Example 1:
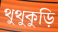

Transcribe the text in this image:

থুথুকুড়ি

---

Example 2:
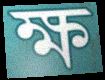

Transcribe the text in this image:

ক্ষ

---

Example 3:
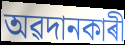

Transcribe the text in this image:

অৱদানকাৰী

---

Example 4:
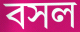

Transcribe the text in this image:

বসল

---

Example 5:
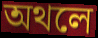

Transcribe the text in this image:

অথলে